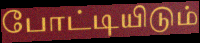
போட்டியிடும்